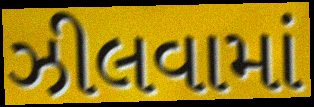
ઝીલવામાં